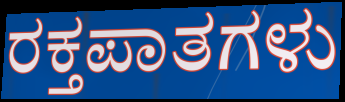
ರಕ್ತಪಾತಗಳು